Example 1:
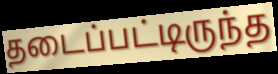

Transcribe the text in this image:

தடைப்பட்டிருந்த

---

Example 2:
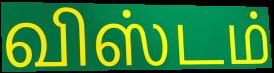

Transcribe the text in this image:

விஸ்டம்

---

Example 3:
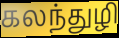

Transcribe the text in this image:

கலந்துழி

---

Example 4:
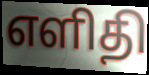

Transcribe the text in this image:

எளிதி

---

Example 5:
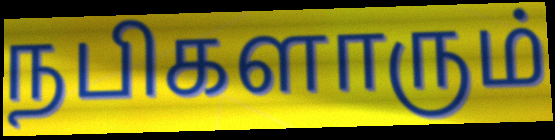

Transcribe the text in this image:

நபிகளாரும்